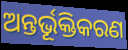
ଅନ୍ତର୍ଭୂକ୍ତିକରଣ